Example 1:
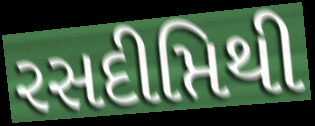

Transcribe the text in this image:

રસદીપ્તિથી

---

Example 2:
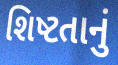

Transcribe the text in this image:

શિષ્ટતાનું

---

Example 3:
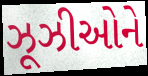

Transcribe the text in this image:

ઝૂઝીઓને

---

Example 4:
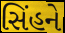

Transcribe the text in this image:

સિંહને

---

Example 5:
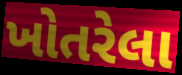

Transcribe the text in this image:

ખોતરેલા